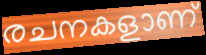
രചനകളാണ്